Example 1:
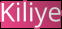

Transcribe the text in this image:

Kiliye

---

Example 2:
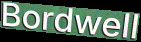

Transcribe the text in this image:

Bordwell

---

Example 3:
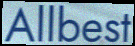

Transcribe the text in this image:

Allbest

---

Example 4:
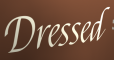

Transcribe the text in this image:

Dressed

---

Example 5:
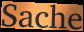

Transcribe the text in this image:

Sache